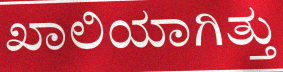
ಖಾಲಿಯಾಗಿತ್ತು